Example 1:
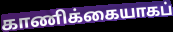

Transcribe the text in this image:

காணிக்கையாகப்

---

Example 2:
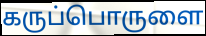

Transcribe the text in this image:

கருப்பொருளை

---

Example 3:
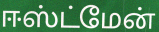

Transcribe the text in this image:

ஈஸ்ட்மேன்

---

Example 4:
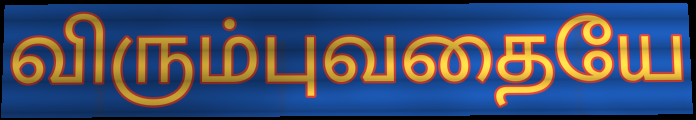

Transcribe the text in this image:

விரும்புவதையே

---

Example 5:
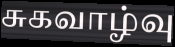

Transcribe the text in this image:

சுகவாழ்வு